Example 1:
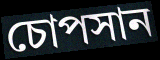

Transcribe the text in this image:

চোপসান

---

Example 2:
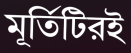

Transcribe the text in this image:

মূর্তিটিরই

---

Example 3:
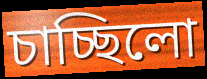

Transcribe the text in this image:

চাচ্ছিলো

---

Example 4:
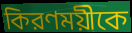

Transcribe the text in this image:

কিরণময়ীকে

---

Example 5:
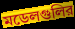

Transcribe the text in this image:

মডেলগুলির